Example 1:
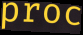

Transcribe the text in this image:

proc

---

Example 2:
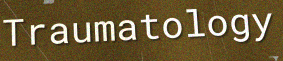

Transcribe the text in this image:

Traumatology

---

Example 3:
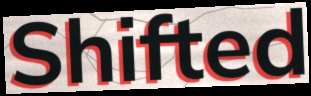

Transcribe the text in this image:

Shifted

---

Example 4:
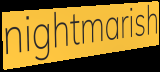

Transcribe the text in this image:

nightmarish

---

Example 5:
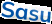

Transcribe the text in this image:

Sasu